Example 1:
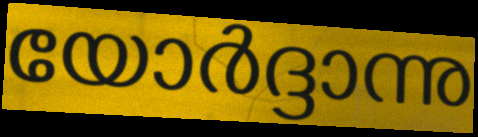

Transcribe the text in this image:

യോർദ്ദാന്നു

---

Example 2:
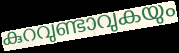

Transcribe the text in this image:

കുറവുണ്ടാവുകയും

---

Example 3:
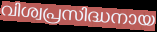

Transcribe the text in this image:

വിശ്വപ്രസിദ്ധനായ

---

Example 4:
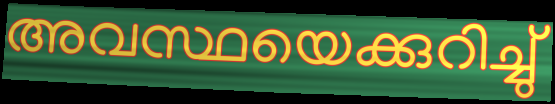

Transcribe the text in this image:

അവസ്ഥയെക്കുറിച്ചു്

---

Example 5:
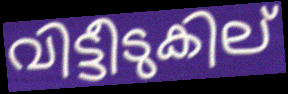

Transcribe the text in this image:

വിട്ടീടുകില്